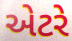
એટરે